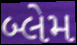
બ્લેમ